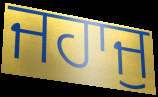
ਜਹਾਜੁ